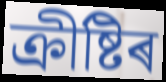
ক্ৰীষ্টিৰ